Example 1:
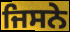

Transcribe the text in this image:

ਜਿਸਨੇ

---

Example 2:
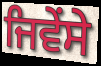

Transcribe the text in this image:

ਜਿਵੇਂਸੇ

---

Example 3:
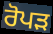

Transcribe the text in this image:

ਰੋਪੜ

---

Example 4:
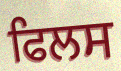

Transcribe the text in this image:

ਫਿਲਸ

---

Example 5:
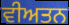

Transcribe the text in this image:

ਵੀਅਤਨ